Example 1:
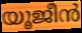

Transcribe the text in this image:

യൂജീൻ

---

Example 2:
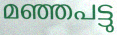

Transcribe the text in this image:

മഞ്ഞപട്ടു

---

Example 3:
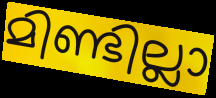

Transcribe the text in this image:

മിണ്ടില്ലാ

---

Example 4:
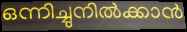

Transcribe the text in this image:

ഒന്നിച്ചുനിൽക്കാൻ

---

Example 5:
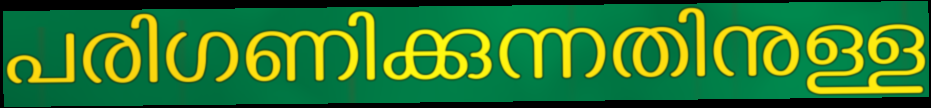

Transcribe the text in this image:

പരിഗണിക്കുന്നതിനുള്ള